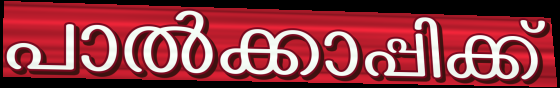
പാൽക്കാപ്പിക്ക്